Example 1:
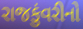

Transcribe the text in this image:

રાજકુંવરીનો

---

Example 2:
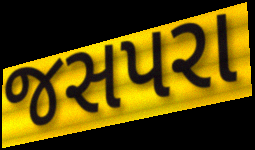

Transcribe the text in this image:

જસપરા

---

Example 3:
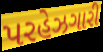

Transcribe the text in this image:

પરહેઝગારી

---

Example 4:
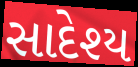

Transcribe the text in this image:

સાદેશ્ય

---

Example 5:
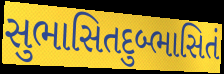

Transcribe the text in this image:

સુભાસિતદુબ્ભાસિતં